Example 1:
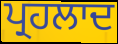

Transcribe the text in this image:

ਪ੍ਰਹਲਾਦ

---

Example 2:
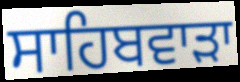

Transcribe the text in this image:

ਸਾਹਿਬਵਾੜਾ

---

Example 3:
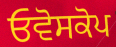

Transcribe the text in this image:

ਓਵੋਸਕੋਪ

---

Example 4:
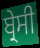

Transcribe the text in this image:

ਬ੍ਰੇਸੀ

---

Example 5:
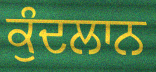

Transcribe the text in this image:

ਕੁੰਦਲਾਨ